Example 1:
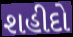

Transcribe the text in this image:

શહીદો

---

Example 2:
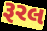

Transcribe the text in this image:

રૂરલ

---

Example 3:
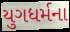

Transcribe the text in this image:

યુગધર્મના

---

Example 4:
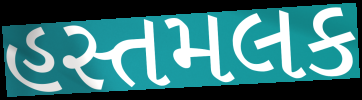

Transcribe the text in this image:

હસ્તમલક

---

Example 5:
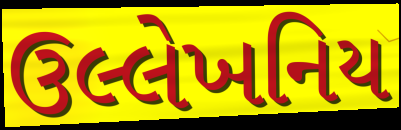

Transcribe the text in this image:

ઉલ્લેખનિય